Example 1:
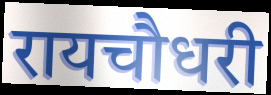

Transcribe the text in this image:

रायचौधरी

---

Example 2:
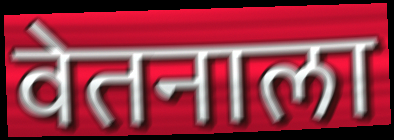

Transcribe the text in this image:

वेतनाला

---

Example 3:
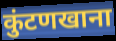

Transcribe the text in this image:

कुंटणखाना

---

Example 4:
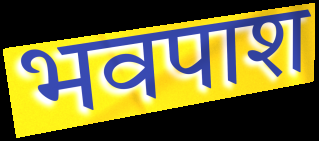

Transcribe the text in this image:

भवपाश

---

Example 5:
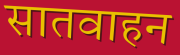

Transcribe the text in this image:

सातवाहन